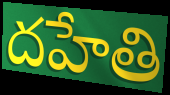
దహేతి